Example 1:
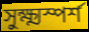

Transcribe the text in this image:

সুক্ষ্মস্পর্শ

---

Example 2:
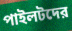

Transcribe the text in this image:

পাইলটদের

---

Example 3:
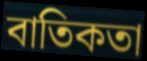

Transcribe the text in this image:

বাতিকতা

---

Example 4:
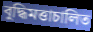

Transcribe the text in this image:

বুদ্ধিমত্তাচালিত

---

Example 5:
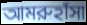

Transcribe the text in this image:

আমরুহাঁসা